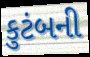
કુટંબની